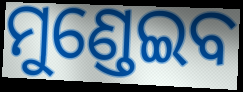
ମୁଣ୍ଡେଇବ